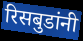
रिसबुडांनी